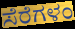
ಸೆರೆಗಳಂ